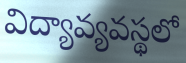
విద్యావ్యవస్థలో